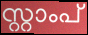
സ്റ്റാംപ്